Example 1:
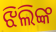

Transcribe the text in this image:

ଝିଲିଙ୍କ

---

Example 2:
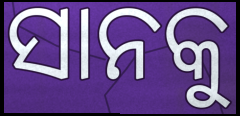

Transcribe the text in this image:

ସାନକୁ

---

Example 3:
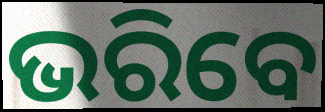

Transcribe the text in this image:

ଭରିବେ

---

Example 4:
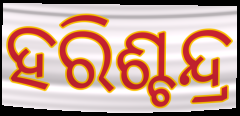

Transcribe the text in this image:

ହରିଶ୍ଚନ୍ଦ୍ର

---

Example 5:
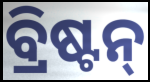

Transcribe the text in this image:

ବ୍ରିଷ୍ଟନ୍